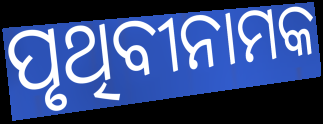
ପୃଥିବୀନାମକ